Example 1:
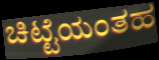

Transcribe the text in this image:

ಚಿಟ್ಟೆಯಂತಹ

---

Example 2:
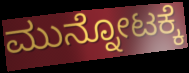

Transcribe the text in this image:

ಮುನ್ನೋಟಕ್ಕೆ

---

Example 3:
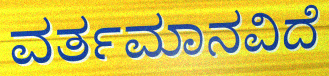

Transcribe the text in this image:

ವರ್ತಮಾನವಿದೆ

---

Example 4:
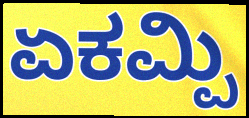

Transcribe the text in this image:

ಏಕಮ್ಪಿ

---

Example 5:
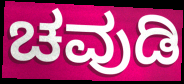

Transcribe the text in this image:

ಚವುಡಿ